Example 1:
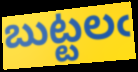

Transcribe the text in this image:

బుట్టలఁ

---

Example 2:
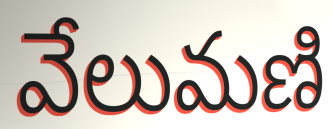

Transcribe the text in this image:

వేలుమణి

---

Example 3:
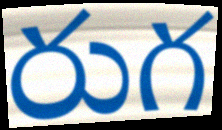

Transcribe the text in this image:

రుగ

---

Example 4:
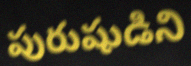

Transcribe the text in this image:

పురుషుడిని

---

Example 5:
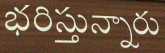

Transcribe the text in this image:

భరిస్తున్నారు